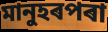
মানুহৰপৰা